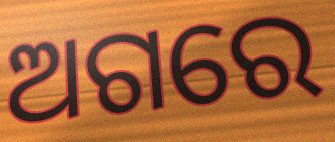
ଅଗରେ